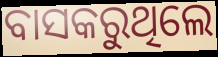
ବାସକରୁଥିଲେ